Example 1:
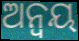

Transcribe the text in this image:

ଅନ୍ୱୟ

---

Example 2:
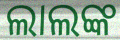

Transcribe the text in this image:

ଲାଲଙ୍କ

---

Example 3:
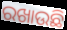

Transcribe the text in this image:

ରଖାଉଛି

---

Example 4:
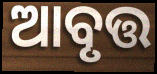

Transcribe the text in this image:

ଆବୃତ୍ତ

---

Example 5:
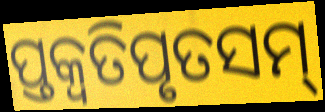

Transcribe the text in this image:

ପ୍ତକ୍ଵତିପୃତସମ୍